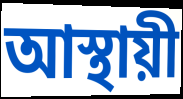
আস্থায়ী